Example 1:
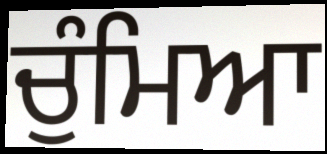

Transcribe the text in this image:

ਚੁੰਮਿਆ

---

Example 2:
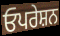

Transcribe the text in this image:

ਓਪਰੇਸ਼ਨ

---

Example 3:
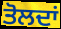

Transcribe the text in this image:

ਤੋਲਦਾਂ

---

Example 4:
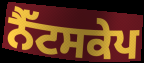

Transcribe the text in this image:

ਨੈੱਟਸਕੇਪ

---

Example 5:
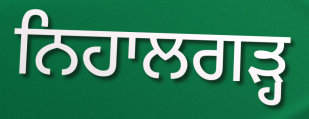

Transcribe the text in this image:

ਨਿਹਾਲਗੜ੍ਹ